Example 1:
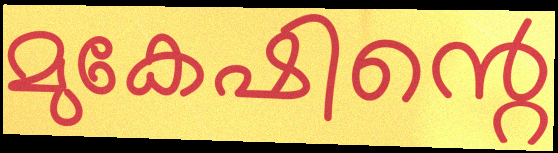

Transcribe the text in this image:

മുകേഷിന്റെ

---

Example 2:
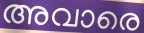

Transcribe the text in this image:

അവാരെ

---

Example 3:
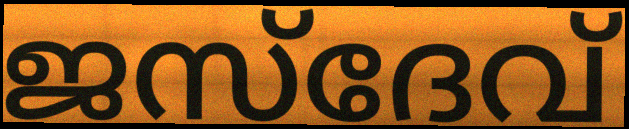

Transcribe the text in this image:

ജസ്ദേവ്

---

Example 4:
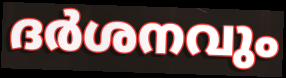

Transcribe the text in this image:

ദർശനവും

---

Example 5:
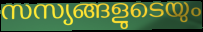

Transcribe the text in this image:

സസ്യങ്ങളുടെയും